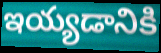
ఇయ్యడానికి